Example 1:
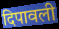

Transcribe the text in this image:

दिपावली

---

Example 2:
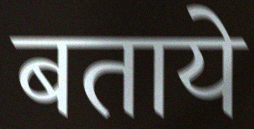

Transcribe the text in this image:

बताये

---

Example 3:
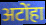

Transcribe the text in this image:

अटोंहा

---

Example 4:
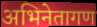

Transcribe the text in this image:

अभिनेतागण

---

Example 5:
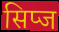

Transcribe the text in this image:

सिप्ज